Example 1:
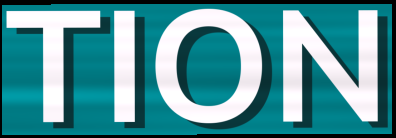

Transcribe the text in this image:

TION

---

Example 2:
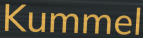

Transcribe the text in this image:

Kummel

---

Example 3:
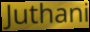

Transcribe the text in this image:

Juthani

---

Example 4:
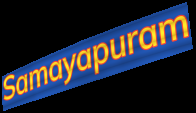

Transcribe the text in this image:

Samayapuram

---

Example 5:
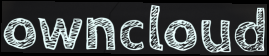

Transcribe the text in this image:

owncloud